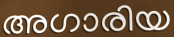
അഗാരിയ